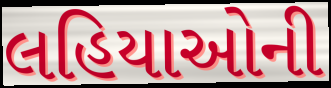
લહિયાઓની